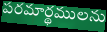
పరమార్థములను